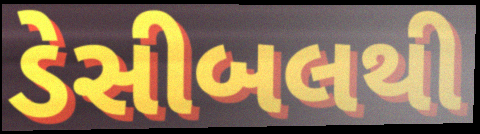
ડેસીબલથી